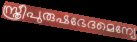
സ്ത്രീപുരുഷഭേദമെന്യേ